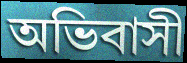
অভিবাসী